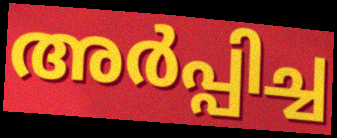
അർപ്പിച്ച